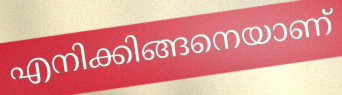
എനിക്കിങ്ങനെയാണ്